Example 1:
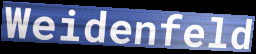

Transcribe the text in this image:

Weidenfeld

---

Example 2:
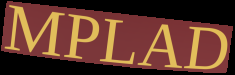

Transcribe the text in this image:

MPLAD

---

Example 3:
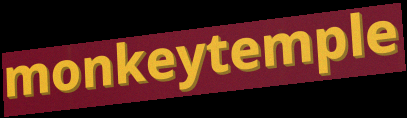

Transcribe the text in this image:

monkeytemple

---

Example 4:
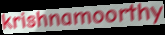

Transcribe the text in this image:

krishnamoorthy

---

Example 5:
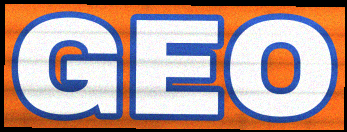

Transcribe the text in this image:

GEO